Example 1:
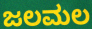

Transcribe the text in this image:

ಜಲಮಲ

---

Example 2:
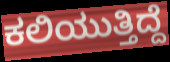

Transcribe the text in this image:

ಕಲಿಯುತ್ತಿದ್ದೆ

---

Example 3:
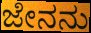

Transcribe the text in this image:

ಜೇನನು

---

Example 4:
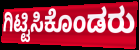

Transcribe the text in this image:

ಗಿಟ್ಟಿಸಿಕೊಂಡರು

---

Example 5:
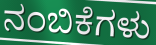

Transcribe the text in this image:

ನಂಬಿಕೆಗಳು